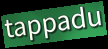
tappadu